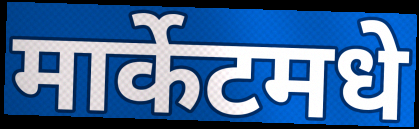
मार्केटमधे